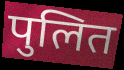
पुलित